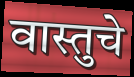
वास्तुचे